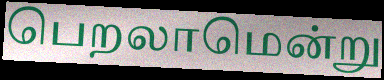
பெறலாமென்று